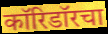
कॉरिडॉरचा